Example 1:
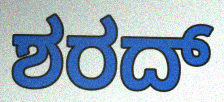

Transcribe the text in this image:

ಶರದ್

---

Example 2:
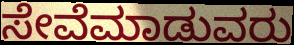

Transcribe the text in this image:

ಸೇವೆಮಾಡುವರು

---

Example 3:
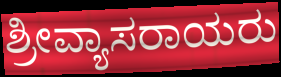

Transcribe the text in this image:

ಶ್ರೀವ್ಯಾಸರಾಯರು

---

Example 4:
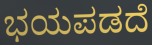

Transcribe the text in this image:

ಭಯಪಡದೆ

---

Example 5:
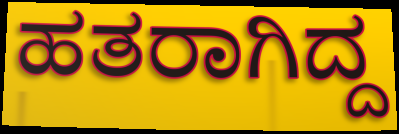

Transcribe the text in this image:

ಹತರಾಗಿದ್ದ